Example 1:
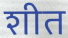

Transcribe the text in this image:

शीत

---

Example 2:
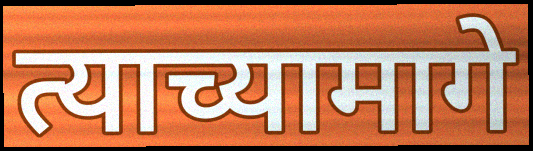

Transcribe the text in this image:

त्याच्यामागे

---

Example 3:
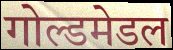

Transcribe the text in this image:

गोल्डमेडल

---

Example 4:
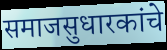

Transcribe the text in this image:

समाजसुधारकांचे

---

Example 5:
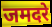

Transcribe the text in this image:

जमदरे